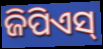
ଜିପିଏସ୍